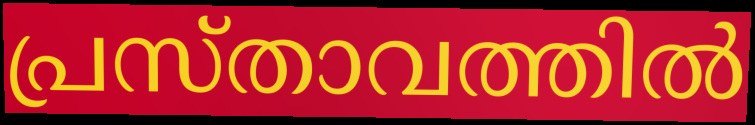
പ്രസ്താവത്തിൽ